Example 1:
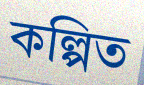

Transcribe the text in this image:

কল্পিত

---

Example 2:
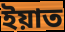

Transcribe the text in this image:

ইয়াত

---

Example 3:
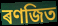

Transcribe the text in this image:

ৰণজিত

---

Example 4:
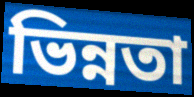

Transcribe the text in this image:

ভিন্নতা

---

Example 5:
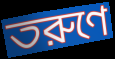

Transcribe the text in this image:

তৰুণে